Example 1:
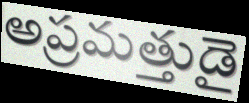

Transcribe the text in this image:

అప్రమత్తుడై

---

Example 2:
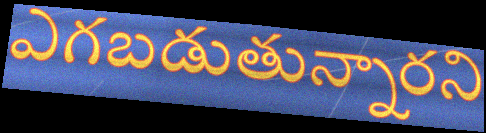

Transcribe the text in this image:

ఎగబడుతున్నారని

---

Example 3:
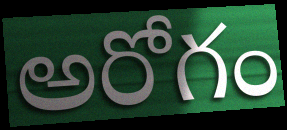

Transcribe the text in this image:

అరోగం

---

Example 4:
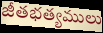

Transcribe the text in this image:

జీతభత్యములు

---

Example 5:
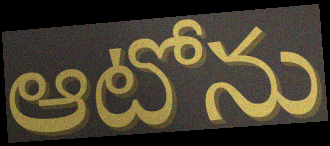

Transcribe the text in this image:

ఆటోను